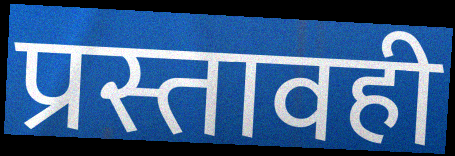
प्रस्तावही